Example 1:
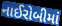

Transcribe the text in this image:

નાઈરોબીમાં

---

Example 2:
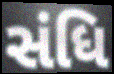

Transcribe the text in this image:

સંધિ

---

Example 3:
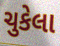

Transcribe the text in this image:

ચુકેલા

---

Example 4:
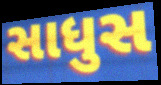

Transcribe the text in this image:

સાધુસ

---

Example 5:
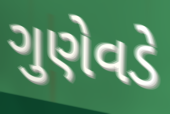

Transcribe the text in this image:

ગુણેવડે